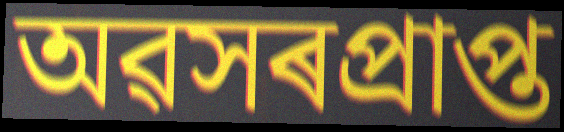
অৱসৰপ্ৰাপ্ত